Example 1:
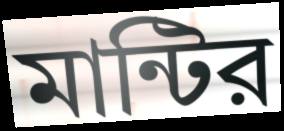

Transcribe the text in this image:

মান্টির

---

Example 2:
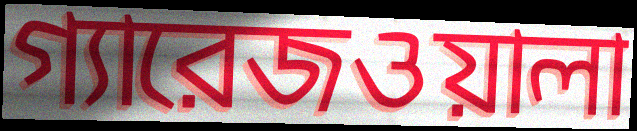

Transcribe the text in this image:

গ্যারেজওয়ালা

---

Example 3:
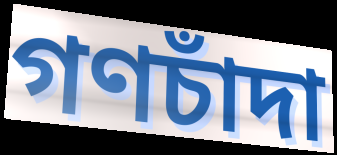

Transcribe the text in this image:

গণচাঁদা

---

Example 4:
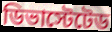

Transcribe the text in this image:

ডিভাস্টেটেড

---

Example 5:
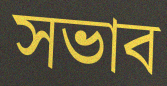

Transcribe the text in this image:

সভাব